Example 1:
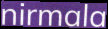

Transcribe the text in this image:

nirmala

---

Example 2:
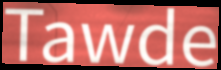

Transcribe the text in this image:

Tawde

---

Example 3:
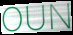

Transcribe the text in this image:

OUN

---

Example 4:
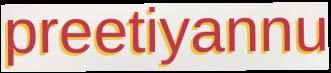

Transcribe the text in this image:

preetiyannu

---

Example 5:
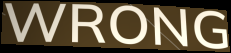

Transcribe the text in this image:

WRONG